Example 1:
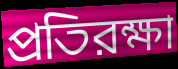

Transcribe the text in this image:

প্রতিরক্ষা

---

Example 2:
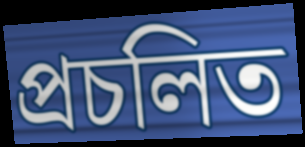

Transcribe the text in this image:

প্রচলিত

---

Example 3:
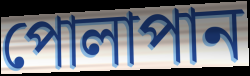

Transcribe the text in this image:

পোলাপান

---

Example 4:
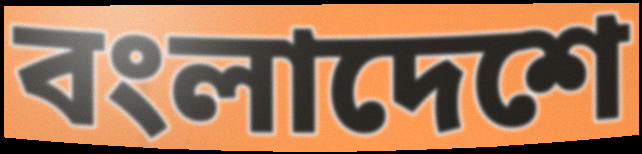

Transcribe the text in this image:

বংলাদেশে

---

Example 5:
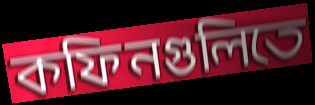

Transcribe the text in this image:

কফিনগুলিতে